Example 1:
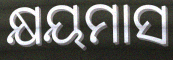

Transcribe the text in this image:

କ୍ଷୟମାସ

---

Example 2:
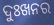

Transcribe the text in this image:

ଦୁଃଖନର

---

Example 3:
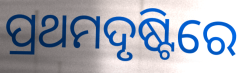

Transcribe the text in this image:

ପ୍ରଥମଦୃଷ୍ଟିରେ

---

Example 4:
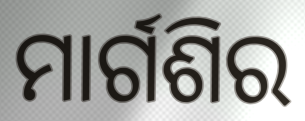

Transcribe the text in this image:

ମାର୍ଗଶିର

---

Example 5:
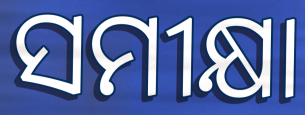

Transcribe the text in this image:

ସମୀକ୍ଷା